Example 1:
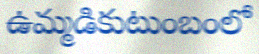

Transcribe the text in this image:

ఉమ్మడికుటుంబంలో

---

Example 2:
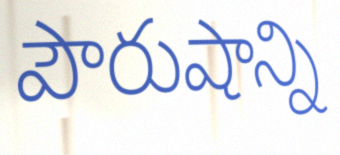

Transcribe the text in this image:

పౌరుషాన్ని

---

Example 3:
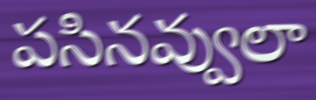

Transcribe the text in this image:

పసినవ్వులా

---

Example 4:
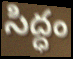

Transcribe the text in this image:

సిద్ధం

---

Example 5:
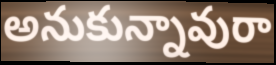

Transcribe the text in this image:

అనుకున్నావురా